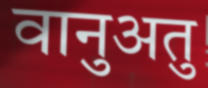
वानुअतु